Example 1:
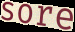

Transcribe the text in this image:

sore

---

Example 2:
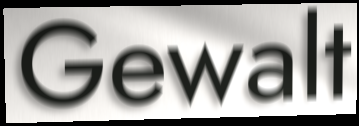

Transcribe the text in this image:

Gewalt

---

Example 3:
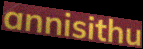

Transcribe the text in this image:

annisithu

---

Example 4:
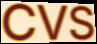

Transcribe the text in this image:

CVS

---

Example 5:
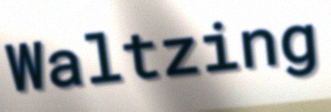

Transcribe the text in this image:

Waltzing